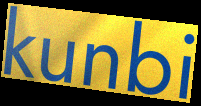
kunbi